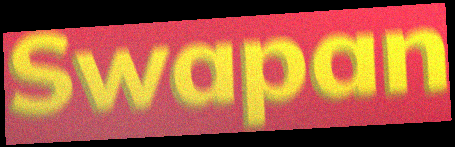
Swapan